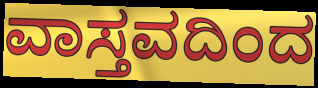
ವಾಸ್ತವದಿಂದ